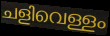
ചളിവെള്ളം